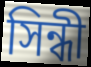
সিন্ধী